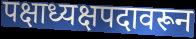
पक्षाध्यक्षपदावरून